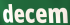
decem